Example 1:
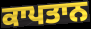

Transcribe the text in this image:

ਕਾਪਤਾਨ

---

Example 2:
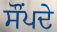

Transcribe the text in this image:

ਸੌਂਪਦੇ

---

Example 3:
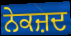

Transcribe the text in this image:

ਨੇਕਜ਼ਦ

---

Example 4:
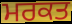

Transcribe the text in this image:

ਮਰਕਤ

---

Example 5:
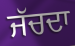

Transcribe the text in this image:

ਜੱਚਦਾ